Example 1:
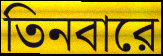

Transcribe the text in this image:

তিনবারে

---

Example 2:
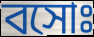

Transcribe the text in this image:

বসোঃ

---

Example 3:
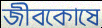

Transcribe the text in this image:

জীবকোষে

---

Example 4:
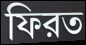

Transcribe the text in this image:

ফিরত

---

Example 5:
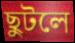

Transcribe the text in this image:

ছুটলে